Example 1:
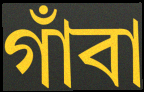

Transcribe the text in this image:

গাঁবা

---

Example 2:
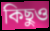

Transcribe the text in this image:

কিছুও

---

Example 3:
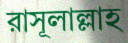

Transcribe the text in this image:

রাসূলাল্লাহ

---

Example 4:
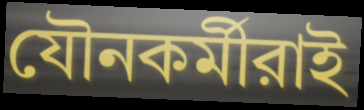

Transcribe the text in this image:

যৌনকর্মীরাই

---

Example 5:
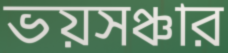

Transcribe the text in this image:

ভয়সঞ্চার